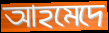
আহমেদে